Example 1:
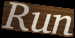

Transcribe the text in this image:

Run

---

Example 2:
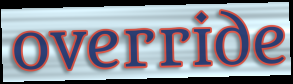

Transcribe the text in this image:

override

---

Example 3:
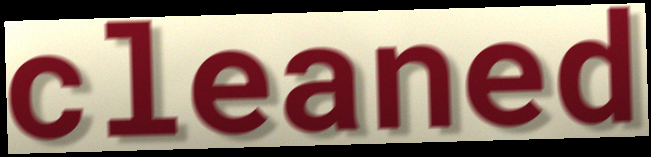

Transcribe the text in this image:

cleaned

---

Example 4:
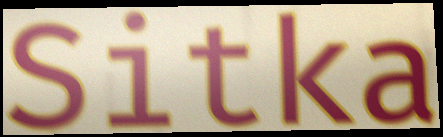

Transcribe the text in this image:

Sitka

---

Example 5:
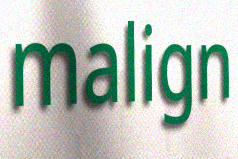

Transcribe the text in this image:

malign